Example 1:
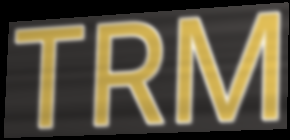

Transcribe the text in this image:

TRM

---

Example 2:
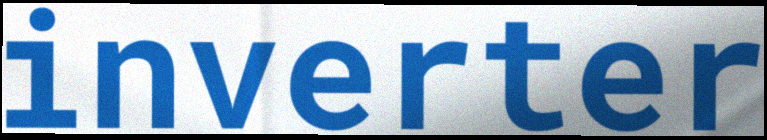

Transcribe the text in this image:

inverter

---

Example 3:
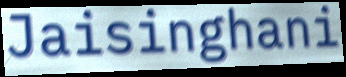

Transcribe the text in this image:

Jaisinghani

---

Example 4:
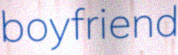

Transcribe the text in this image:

boyfriend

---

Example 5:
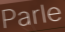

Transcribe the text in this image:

Parle